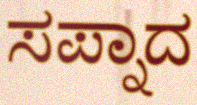
ಸಪ್ನಾದ